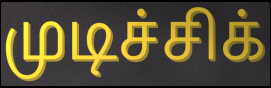
முடிச்சிக்